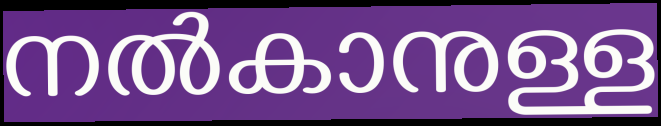
നൽകാനുള്ള